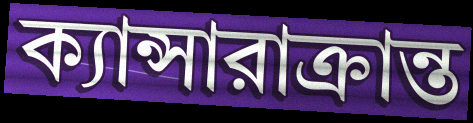
ক্যান্সারাক্রান্ত